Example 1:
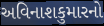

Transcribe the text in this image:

અવિનાશકુમારનો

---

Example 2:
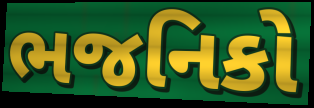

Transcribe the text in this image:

ભજનિકો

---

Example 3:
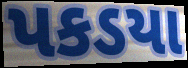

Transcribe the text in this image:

પકડયા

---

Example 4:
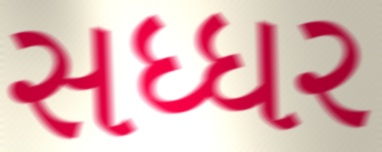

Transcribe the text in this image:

સધ્ધર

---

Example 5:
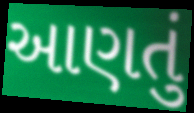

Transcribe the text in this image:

આણતું